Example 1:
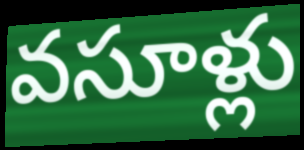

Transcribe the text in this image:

వసూళ్లు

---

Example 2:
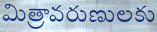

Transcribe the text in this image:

మిత్రావరుణులకు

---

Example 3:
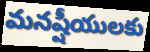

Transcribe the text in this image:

మనష్షీయులకు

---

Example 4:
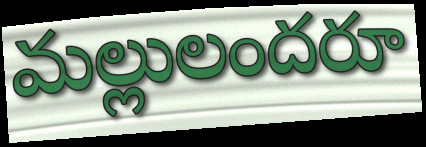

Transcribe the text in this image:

మల్లులందరూ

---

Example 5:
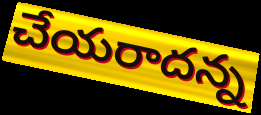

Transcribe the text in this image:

చేయరాదన్న